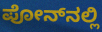
ಪೋನ್‍ನಲ್ಲಿ